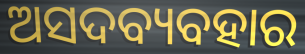
ଅସଦବ୍ୟବହାର